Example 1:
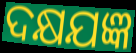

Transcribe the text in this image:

ଦକ୍ଷଯଜ୍ଞ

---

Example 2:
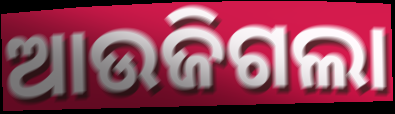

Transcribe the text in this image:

ଆଉଜିଗଲା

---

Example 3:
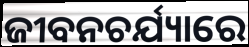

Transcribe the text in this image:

ଜୀବନଚର୍ଯ୍ୟାରେ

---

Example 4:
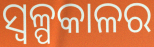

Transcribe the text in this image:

ସ୍ୱଳ୍ପକାଳର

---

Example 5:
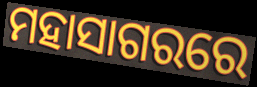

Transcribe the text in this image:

ମହାସାଗରରେ